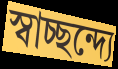
স্বাচ্ছন্দ্যে